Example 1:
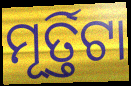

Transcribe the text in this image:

ମୂର୍ତ୍ତିଟା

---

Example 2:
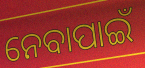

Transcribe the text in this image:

ନେବାପାଇଁ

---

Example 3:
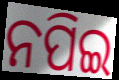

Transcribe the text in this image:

ନପିଇ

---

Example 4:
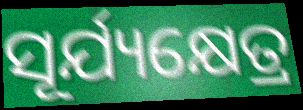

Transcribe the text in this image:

ସୂର୍ଯ୍ୟକ୍ଷେତ୍ର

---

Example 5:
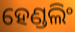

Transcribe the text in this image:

ହେଣ୍ଡଲିଂ